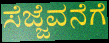
ಸೆಜ್ಜೆವನೆಗೆ